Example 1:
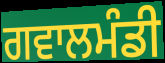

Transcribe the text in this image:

ਗਵਾਲਮੰਡੀ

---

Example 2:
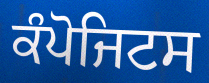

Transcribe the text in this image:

ਕੰਪੋਜਿਟਸ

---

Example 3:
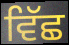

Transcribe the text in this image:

ਵਿੱਛ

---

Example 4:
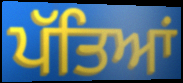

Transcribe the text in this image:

ਪੱਤਿਆਂ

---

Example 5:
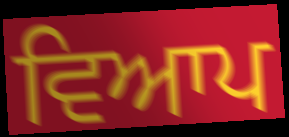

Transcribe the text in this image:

ਵਿਆਪ